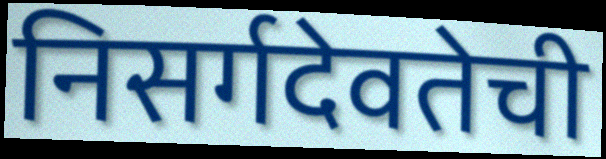
निसर्गदेवतेची